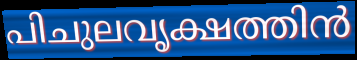
പിചുലവൃക്ഷത്തിൻ